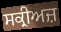
ਸਕ੍ਰੀਅਜ਼